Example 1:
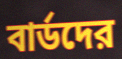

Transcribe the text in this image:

বার্ডদের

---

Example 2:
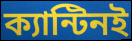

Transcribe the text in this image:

ক্যান্টিনই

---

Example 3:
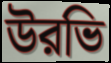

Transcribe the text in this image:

উরভি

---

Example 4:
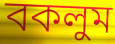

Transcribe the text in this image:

বকলুম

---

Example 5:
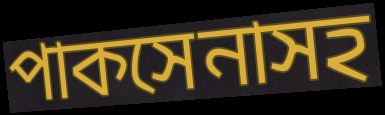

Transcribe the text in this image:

পাকসেনাসহ